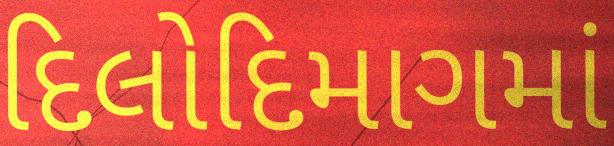
દિલોદિમાગમાં